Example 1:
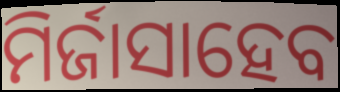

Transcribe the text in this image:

ମିର୍ଜାସାହେବ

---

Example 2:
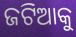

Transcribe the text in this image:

ଜଟିଆକୁ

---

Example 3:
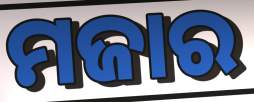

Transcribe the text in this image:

ମଜାର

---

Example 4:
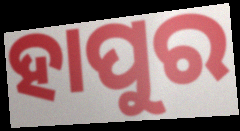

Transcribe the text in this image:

ହାପୁର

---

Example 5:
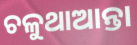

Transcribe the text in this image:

ଚଳୁଥାଆନ୍ତା